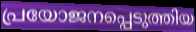
പ്രയോജനപ്പെടുത്തിയ